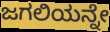
ಜಗಲಿಯನ್ನೇ